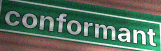
conformant